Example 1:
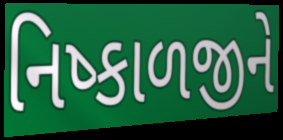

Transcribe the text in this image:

નિષ્કાળજીને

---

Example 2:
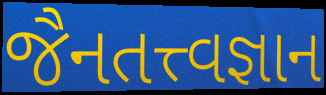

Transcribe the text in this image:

જૈનતત્ત્વજ્ઞાન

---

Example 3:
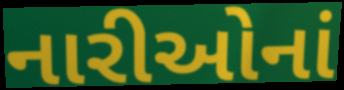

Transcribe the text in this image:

નારીઓનાં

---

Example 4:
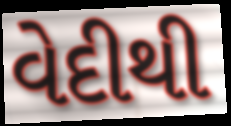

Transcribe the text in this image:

વેદીથી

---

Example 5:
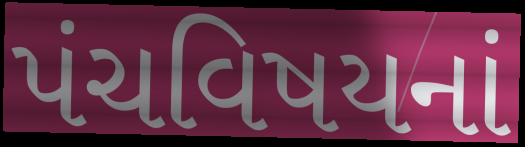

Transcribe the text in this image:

પંચવિષયનાં